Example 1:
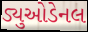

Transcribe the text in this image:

ડ્યુઓડેનલ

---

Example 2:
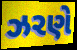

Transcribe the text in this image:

ઝરણે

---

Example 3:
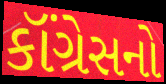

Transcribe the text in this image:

કૉંગ્રેસનો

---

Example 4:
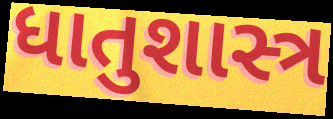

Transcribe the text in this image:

ધાતુશાસ્ત્ર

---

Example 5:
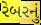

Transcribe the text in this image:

રેબરનું